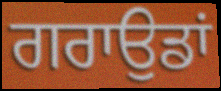
ਗਰਾਉਡਾਂ